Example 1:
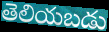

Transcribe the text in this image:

తెలియబడు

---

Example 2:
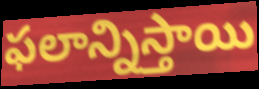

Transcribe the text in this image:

ఫలాన్నిస్తాయి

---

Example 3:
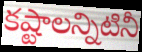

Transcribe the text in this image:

కష్టాలన్నిటినీ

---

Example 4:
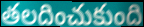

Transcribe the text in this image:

తలదించుకుంది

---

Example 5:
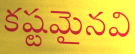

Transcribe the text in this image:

కష్టమైనవి